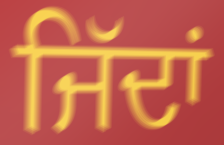
ਜਿੱਦਾਂ